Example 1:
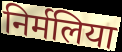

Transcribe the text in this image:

निर्मलिया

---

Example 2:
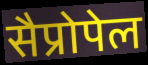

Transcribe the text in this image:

सैप्रोपेल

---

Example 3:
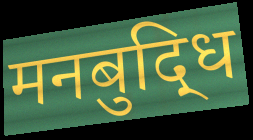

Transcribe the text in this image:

मनबुद्धि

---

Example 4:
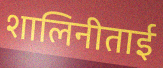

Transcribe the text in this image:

शालिनीताई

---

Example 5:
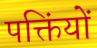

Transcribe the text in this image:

पक्तिंयों